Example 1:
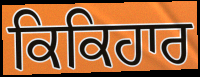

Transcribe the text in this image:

ਕਿਕਿਹਾਰ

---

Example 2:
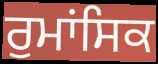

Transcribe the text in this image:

ਰੁਮਾਂਸਿਕ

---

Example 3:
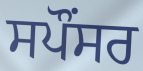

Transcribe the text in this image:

ਸਪੌਂਸਰ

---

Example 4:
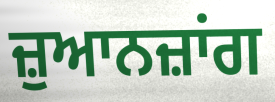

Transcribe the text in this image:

ਜ਼ੁਆਨਜ਼ਾਂਗ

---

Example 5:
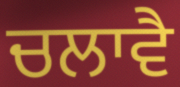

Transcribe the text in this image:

ਚਲਾਵੈ